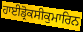
ਹਾਈਡ੍ਰੋਕਸੀਕੁਮਾਰਿਨ